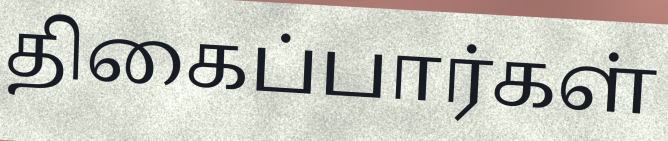
திகைப்பார்கள்